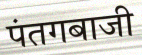
पंतगबाजी